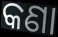
କଣା